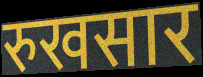
रुखसार